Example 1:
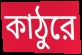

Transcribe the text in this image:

কাঠুরে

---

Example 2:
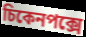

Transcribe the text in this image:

চিকেনপক্সে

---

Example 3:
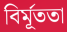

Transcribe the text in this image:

বির্মূততা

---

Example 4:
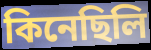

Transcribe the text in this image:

কিনেছিলি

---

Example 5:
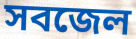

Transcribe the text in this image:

সবজেল